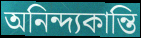
অনিন্দ্যকান্তি